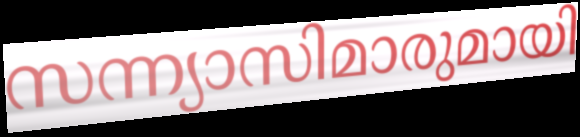
സന്ന്യാസിമാരുമായി